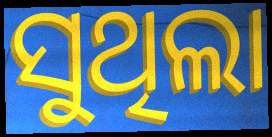
ସୁଥିଲା